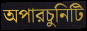
অপারচুনিটি